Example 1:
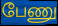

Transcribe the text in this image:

பேணு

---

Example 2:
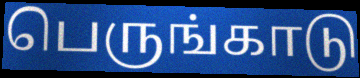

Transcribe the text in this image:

பெருங்காடு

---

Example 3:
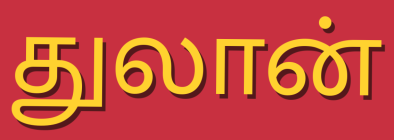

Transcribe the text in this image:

துலான்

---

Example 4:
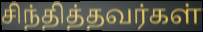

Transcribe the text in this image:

சிந்தித்தவர்கள்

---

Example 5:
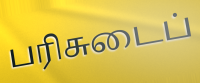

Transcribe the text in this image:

பரிசுடைப்